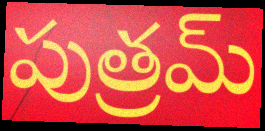
పుత్రమ్